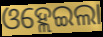
ଓହ୍ଲେଇଲା